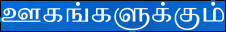
ஊகங்களுக்கும்